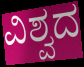
ವಿಶ್ವದ